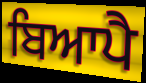
ਬਿਆਪੈ